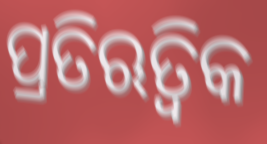
ପ୍ରତିଋତ୍ୱିକ